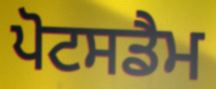
ਪੋਟਸਡੈਮ